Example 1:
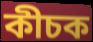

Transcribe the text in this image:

কীচক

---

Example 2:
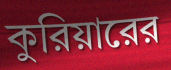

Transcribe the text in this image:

কুরিয়ারের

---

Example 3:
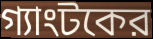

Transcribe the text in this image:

গ্যাংটকের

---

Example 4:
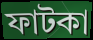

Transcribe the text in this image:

ফাটকা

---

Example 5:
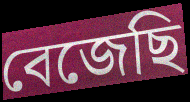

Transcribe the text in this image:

বেজেছি